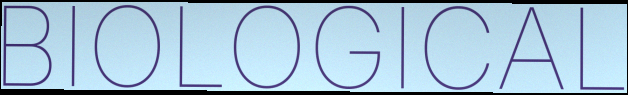
BIOLOGICAL